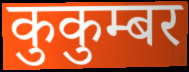
कुकुम्बर